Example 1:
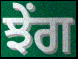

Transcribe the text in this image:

ਝੇਂਗ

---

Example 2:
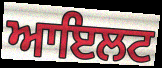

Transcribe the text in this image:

ਆਇਲਟ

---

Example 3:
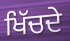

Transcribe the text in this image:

ਖਿੱਚਦੇ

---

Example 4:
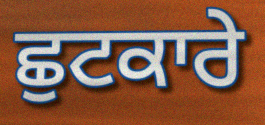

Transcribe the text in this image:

ਛੁਟਕਾਰੇ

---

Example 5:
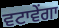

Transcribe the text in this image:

ਵਟਾਵੇਂਗਾ